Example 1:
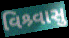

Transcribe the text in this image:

વિશ્ર્વાસુ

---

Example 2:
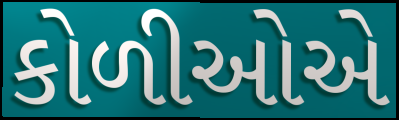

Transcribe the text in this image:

કોળીઓએ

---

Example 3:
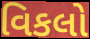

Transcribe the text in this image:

વિકલો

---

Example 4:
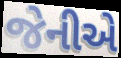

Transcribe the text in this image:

જેનીએ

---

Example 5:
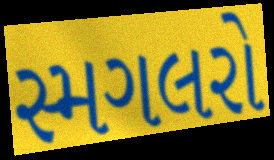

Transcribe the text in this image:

સ્મગલરો